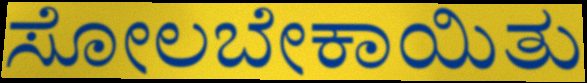
ಸೋಲಬೇಕಾಯಿತು